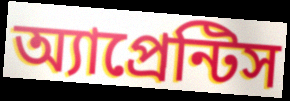
অ্যাপ্রেন্টিস